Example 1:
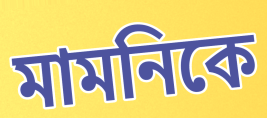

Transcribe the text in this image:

মামনিকে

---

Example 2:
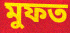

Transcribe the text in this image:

মুফত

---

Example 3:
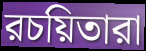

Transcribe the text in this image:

রচয়িতারা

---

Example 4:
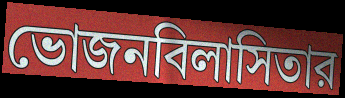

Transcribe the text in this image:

ভোজনবিলাসিতার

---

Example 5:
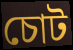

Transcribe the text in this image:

চোট